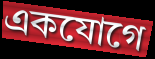
একযোগে